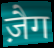
ज़ैग